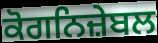
ਕੋਗਨਿਜ਼ੇਬਲ